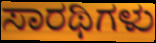
ಸಾರಥಿಗಳು